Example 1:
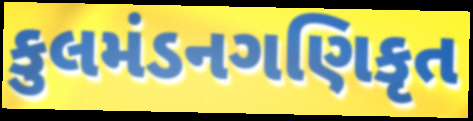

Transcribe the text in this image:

કુલમંડનગણિકૃત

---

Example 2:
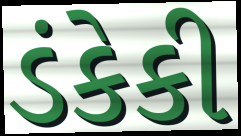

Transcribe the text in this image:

ડંકેકી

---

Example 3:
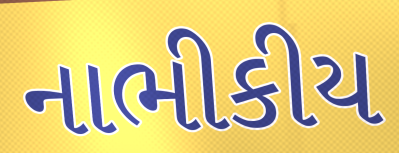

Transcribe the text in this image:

નાભીકીય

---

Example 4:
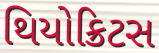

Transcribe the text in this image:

થિયોક્રિટસ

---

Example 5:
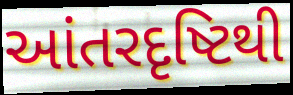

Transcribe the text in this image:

આંતરદૃષ્ટિથી